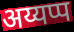
अय्यप्प